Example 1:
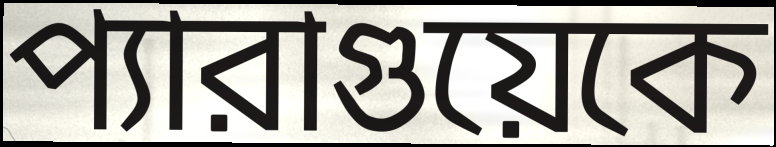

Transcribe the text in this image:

প্যারাগুয়েকে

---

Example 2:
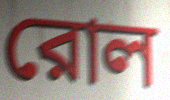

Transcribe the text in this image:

রোল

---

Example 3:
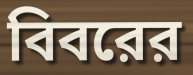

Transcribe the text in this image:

বিবরের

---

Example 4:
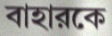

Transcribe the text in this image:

বাহারকে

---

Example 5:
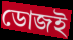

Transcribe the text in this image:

ডোজই